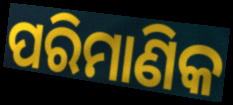
ପରିମାଣିକ